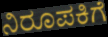
ನಿರೂಪಕಿಗೆ